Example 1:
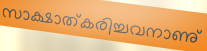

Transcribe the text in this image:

സാക്ഷാത്കരിച്ചവനാണു്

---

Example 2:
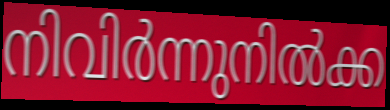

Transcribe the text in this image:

നിവിർന്നുനിൽക്ക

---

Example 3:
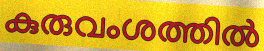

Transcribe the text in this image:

കുരുവംശത്തിൽ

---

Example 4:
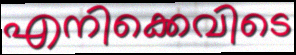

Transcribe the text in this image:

എനിക്കെവിടെ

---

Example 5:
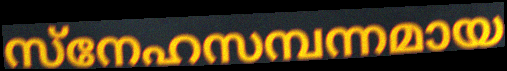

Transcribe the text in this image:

സ്നേഹസമ്പന്നമായ